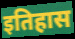
इतिहास